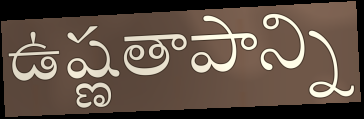
ఉష్ణతాపాన్ని